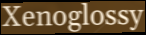
Xenoglossy